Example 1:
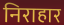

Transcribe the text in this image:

निराहार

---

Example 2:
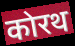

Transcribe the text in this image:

कोरथ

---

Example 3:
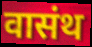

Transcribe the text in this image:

वासंथ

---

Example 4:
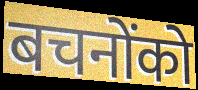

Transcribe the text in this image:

बचनोंको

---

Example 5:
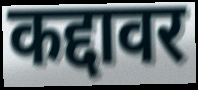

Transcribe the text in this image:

कद्दावर